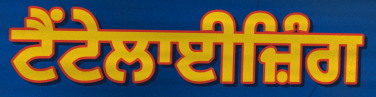
ਟੈਂਟੇਲਾਈਜ਼ਿੰਗ